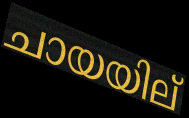
ചായയില്